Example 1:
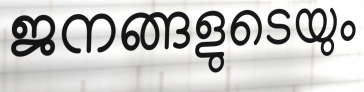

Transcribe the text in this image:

ജനങ്ങളുടെയും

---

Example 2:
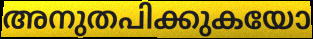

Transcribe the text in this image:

അനുതപിക്കുകയോ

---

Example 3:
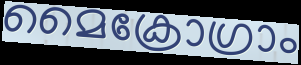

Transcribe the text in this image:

മൈക്രോഗ്രാം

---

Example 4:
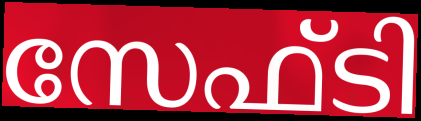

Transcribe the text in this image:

സേഫ്ടി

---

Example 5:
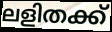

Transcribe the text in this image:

ലളിതക്ക്